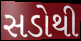
સડોથી